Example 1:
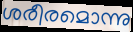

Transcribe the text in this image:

ശരീരമൊന്നു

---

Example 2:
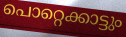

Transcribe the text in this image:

പൊറ്റെക്കാട്ടും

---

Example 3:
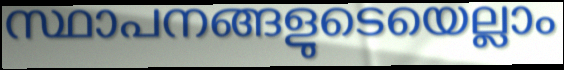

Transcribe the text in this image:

സ്ഥാപനങ്ങളുടെയെല്ലാം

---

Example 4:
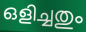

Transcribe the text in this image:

ഒളിച്ചതും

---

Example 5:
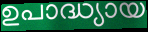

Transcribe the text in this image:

ഉപാദ്ധ്യായ